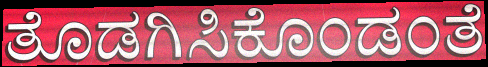
ತೊಡಗಿಸಿಕೊಂಡಂತೆ